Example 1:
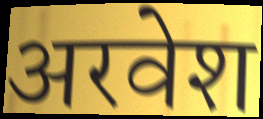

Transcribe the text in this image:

अरवेश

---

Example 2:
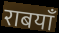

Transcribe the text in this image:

राबयाँ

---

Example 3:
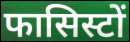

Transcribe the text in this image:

फासिस्टों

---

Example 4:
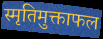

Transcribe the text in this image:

स्मृतिमुक्ताफल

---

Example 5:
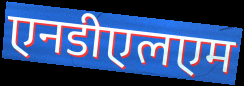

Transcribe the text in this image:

एनडीएलएम